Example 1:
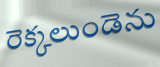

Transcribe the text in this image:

రెక్కలుండెను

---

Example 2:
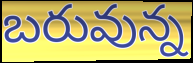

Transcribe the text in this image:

బరువున్న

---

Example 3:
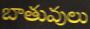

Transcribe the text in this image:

బాతువులు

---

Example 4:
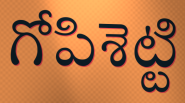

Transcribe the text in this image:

గోపిశెట్టి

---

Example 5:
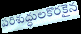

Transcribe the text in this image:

పరిశుద్ధులకొరకైన